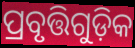
ପ୍ରବୃତ୍ତିଗୁଡ଼ିକ